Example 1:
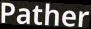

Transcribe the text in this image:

Pather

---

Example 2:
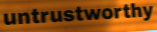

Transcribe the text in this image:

untrustworthy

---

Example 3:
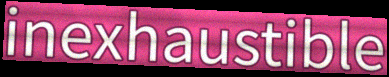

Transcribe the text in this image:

inexhaustible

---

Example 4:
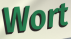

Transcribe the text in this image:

Wort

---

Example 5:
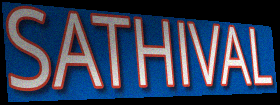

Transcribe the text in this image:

SATHIVAL